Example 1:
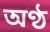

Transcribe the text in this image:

অণ্ঠ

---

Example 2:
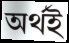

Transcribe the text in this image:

অৰ্থই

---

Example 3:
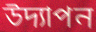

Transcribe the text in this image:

উদ্যাপন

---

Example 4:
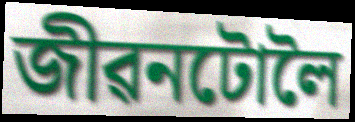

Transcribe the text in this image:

জীৱনটোলৈ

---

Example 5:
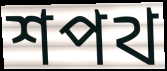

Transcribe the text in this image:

শপথ